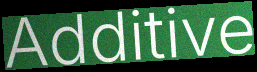
Additive